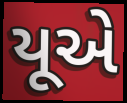
યૂએ